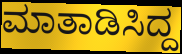
ಮಾತಾಡಿಸಿದ್ದ